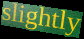
slightly